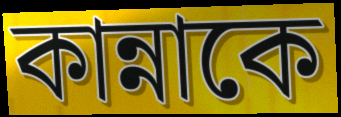
কান্নাকে